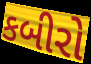
કબીરો